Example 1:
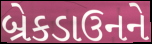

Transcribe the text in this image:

બ્રેકડાઉનને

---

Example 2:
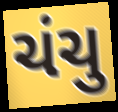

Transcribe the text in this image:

ચંચુ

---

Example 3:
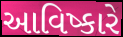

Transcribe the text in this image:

આવિષ્કારે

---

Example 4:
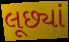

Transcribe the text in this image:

લૂછ્યાં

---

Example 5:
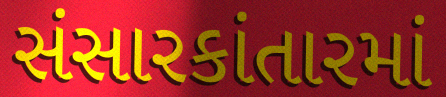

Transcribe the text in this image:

સંસારકાંતારમાં